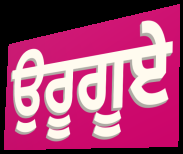
ਉਰੂਗੂਏ